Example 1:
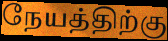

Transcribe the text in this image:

நேயத்திற்கு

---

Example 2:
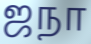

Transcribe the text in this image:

ஜநா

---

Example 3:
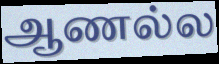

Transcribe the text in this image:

ஆணல்ல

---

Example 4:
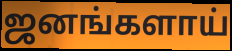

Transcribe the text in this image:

ஜனங்களாய்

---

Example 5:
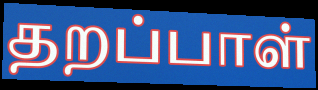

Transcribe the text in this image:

தறப்பாள்